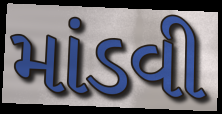
માંડવી